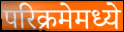
परिक्रमेमध्ये